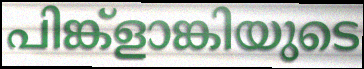
പിങ്ക്ളാങ്കിയുടെ